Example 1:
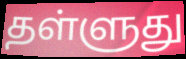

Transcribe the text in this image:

தள்ளுது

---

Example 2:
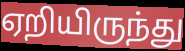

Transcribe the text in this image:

ஏறியிருந்து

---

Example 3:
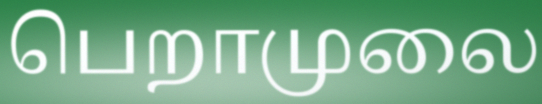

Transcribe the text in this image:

பெறாமுலை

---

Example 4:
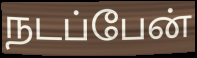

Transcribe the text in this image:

நடப்பேன்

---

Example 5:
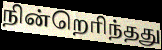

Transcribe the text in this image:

நின்றெரிந்தது